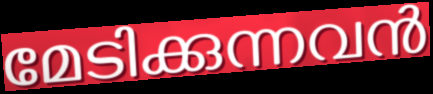
മേടിക്കുന്നവൻ